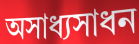
অসাধ্যসাধন